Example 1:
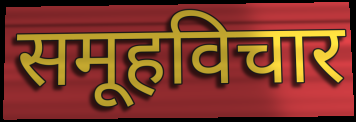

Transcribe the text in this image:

समूहविचार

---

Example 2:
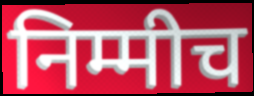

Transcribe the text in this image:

निम्मीच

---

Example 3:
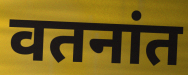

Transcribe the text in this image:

वतनांत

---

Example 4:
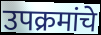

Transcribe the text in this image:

उपक्रमांचे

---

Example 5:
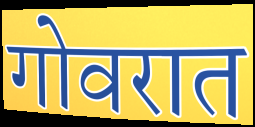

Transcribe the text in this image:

गोवरात